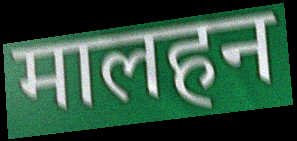
मालहन